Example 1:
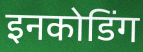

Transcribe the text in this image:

इनकोडिंग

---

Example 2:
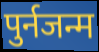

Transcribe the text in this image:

पुर्नजन्म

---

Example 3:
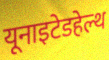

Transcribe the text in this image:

यूनाइटेडहेल्थ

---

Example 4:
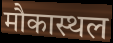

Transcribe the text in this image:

मौकास्थल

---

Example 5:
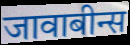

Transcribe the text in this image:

जावाबीन्स